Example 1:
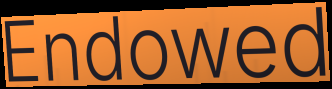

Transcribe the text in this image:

Endowed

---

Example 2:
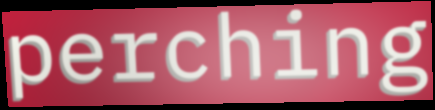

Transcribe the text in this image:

perching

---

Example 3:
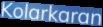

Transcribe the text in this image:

Kolarkaran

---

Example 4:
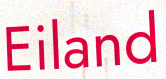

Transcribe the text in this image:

Eiland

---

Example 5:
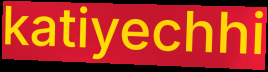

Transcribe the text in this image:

katiyechhi